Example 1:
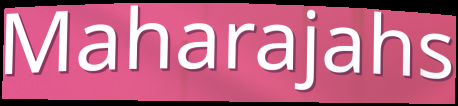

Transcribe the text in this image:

Maharajahs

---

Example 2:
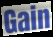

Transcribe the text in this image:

Gain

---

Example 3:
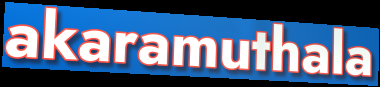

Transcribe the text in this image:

akaramuthala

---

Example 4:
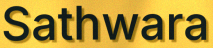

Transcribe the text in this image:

Sathwara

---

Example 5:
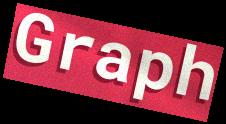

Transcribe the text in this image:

Graph